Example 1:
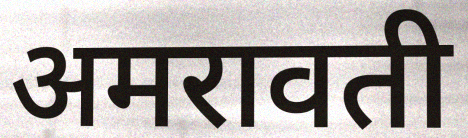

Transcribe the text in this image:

अमरावती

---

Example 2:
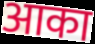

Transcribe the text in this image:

आका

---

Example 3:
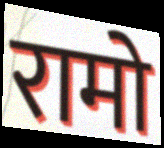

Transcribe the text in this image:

रामो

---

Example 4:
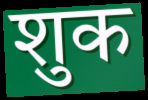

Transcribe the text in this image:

शुक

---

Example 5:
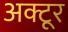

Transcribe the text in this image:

अक्टूर